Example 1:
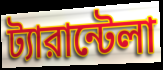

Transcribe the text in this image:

ট্যারান্টেলা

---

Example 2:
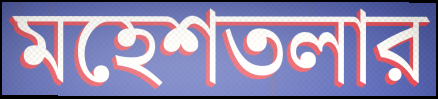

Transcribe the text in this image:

মহেশতলার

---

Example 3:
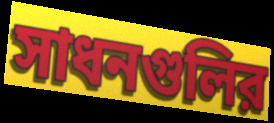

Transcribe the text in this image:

সাধনগুলির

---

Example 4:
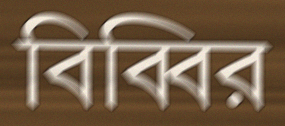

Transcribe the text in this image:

বিব্বির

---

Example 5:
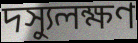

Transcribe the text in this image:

দস্যুলক্ষণ